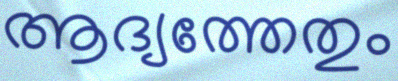
ആദ്യത്തേതും